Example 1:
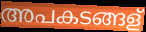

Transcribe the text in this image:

അപകടങ്ങള്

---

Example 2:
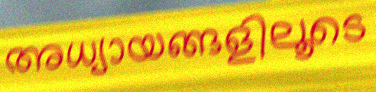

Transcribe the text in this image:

അധ്യായങ്ങളിലൂടെ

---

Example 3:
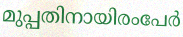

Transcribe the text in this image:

മുപ്പതിനായിരംപേർ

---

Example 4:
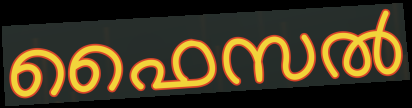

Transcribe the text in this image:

ഫൈസൽ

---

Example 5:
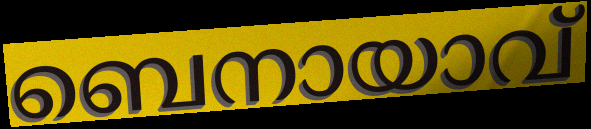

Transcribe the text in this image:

ബെനായാവ്